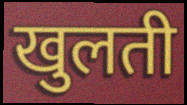
खुलती